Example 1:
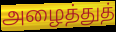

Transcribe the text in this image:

அழைத்துத்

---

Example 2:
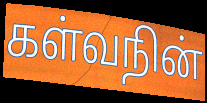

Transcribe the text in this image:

கள்வநின்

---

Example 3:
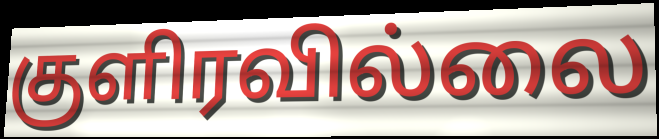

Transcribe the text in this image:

குளிரவில்லை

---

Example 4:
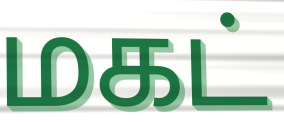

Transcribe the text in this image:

மகட்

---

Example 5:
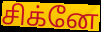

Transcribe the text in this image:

சிக்னே